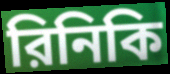
রিনিকি